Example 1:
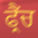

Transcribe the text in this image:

ਫ੍ਰੈਂਚ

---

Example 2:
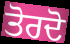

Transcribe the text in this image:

ਤੋਰਦੋ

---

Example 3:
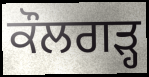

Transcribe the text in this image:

ਕੌਲਗੜ੍ਹ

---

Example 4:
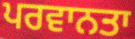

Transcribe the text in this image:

ਪਰਵਾਨਤਾ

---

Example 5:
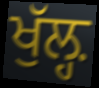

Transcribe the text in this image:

ਖੁੱਲ਼੍ਹ